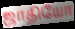
ஜாதியோ